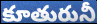
కూతురునీ